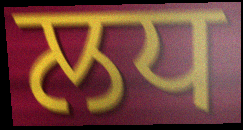
ਲਧ